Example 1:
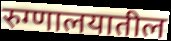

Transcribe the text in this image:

रुग्णालयातील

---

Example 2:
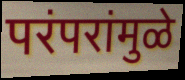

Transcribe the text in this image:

परंपरांमुळे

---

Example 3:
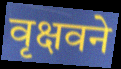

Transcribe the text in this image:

वृक्षवने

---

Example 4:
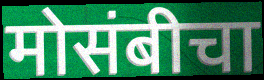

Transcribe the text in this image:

मोसंबीचा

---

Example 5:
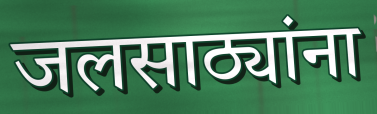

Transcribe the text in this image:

जलसाठ्यांना